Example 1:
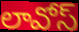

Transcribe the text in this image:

లావోస్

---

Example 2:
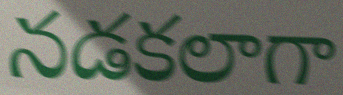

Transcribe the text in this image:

నడకలాగా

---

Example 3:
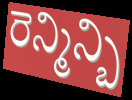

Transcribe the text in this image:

రెన్మిన్బి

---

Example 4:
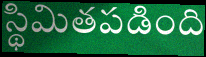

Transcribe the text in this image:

స్థిమితపడింది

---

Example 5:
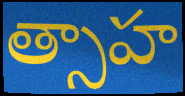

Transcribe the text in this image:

త్సాహ